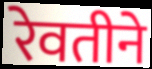
रेवतीने